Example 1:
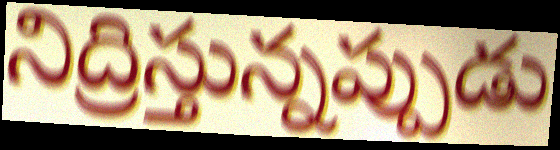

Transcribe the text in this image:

నిద్రిస్తున్నప్పుడు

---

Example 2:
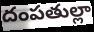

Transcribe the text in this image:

దంపతుల్లా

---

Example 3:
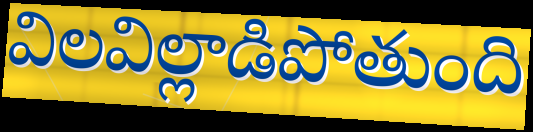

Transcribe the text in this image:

విలవిల్లాడిపోతుంది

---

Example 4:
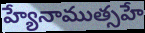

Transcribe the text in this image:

హ్యేనాముత్సహే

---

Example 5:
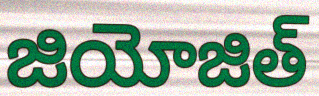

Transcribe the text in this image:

జియోజిత్